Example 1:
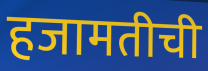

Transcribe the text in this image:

हजामतीची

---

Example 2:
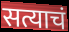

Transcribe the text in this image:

सत्याचं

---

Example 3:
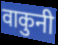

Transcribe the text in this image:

वाकुनी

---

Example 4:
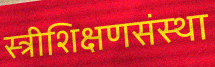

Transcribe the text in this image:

स्त्रीशिक्षणसंस्था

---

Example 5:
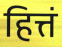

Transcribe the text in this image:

हित्तं